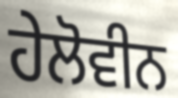
ਹੇਲੋਵੀਨ